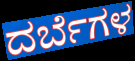
ದರ್ಬೆಗಳ